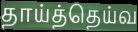
தாய்த்தெய்வ